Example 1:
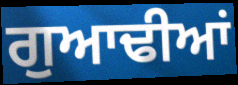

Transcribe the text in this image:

ਗੁਆਢੀਆਂ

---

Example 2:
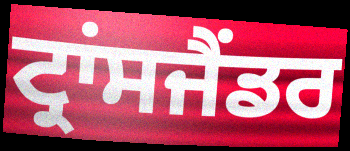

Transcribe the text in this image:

ਟ੍ਰਾਂਸਜੈਂਡਰ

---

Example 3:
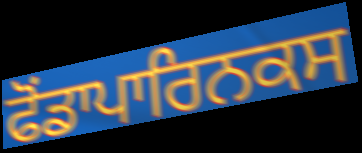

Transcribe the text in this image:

ਫੋਂਡਾਪਾਰਿਨਕਸ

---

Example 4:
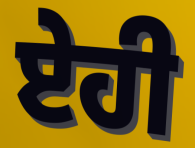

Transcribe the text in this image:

ਏਹੀ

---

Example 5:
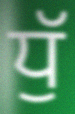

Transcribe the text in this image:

ਧੁੱ